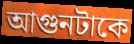
আগুনটাকে